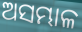
ଅସମ୍ଭାଳ